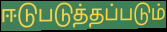
ஈடுபடுத்தப்படும்